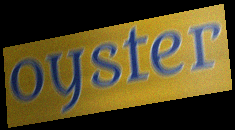
oyster